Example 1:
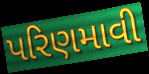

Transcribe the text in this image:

પરિણમાવી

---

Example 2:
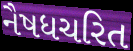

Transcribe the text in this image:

નૈષધચરિત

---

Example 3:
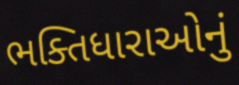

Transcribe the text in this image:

ભક્તિધારાઓનું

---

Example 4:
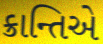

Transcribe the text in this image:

ક્રાન્તિએ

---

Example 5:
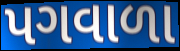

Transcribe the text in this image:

પગવાળા